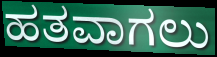
ಹತವಾಗಲು